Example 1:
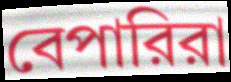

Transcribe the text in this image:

বেপারিরা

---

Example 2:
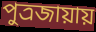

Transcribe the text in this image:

পুত্রজায়ায়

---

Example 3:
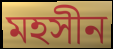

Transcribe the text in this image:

মহসীন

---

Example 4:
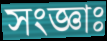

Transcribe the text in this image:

সংজ্ঞাঃ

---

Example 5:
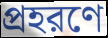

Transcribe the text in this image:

প্রহরণে